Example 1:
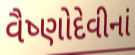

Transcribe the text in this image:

વૈષ્ણોદેવીનાં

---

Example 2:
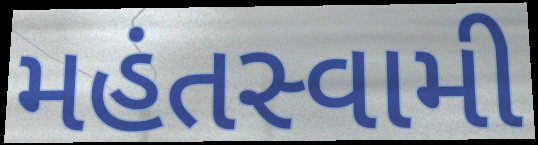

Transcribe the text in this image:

મહંતસ્વામી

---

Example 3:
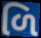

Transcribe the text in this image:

ળિ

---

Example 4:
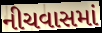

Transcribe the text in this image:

નીચવાસમાં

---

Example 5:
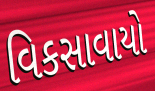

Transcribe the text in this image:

વિકસાવાયો